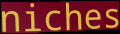
niches